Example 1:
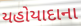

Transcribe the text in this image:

યહોયાદાના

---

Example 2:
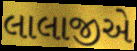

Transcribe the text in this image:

લાલાજીએ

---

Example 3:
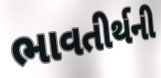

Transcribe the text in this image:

ભાવતીર્થની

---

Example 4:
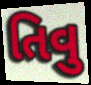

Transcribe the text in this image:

તિવુ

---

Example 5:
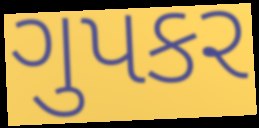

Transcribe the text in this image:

ગુપકર